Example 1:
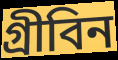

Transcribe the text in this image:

গ্রীবিন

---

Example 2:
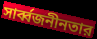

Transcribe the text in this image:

সার্ব্বজনীনতার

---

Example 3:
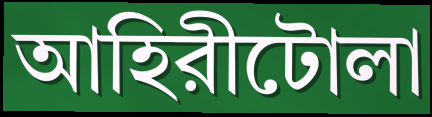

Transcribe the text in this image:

আহিরীটোলা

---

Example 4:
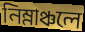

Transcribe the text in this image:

নিম্নাঞ্চলে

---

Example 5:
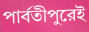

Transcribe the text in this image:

পার্বতীপুরেই